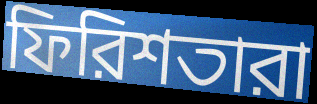
ফিরিশতারা